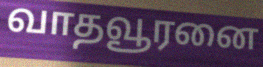
வாதவூரனை